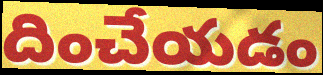
దించేయడం